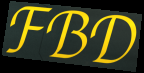
FBD